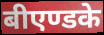
बीएण्डके